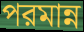
পরমান্ন